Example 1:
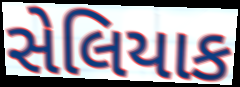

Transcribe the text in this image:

સેલિયાક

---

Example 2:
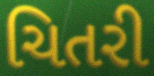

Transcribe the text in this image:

ચિતરી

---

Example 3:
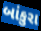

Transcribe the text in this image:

બાંકુરા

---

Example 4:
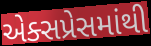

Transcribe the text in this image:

એક્સપ્રેસમાંથી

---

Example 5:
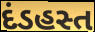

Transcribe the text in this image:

દંડહસ્ત